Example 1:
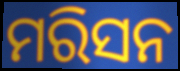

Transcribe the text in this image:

ମରିସନ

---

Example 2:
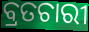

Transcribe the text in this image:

ବ୍ରତଚାରୀ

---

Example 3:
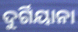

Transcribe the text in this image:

ଦୁର୍ଗିୟାନା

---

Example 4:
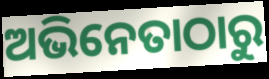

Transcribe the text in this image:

ଅଭିନେତାଠାରୁ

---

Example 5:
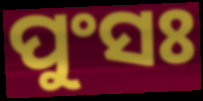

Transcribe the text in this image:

ପୁଂସଃ